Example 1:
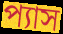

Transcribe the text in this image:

প্যাস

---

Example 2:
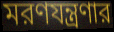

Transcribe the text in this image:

মরণযন্ত্রণার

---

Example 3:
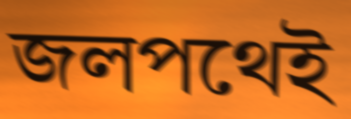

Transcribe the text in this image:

জলপথেই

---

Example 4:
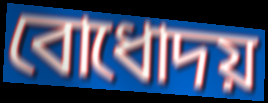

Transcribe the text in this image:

বোধোদয়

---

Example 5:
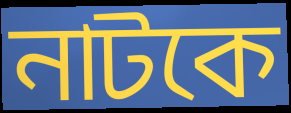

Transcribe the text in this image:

নাটকে